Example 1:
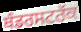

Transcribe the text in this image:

ਥੰਡਰਸਟਰੱਕ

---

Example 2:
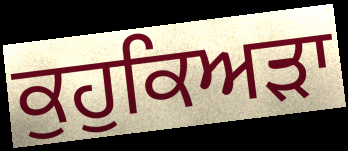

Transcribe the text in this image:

ਕੁਹੁਕਿਅੜਾ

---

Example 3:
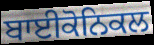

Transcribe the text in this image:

ਬਾਈਕੋਨਿਕਲ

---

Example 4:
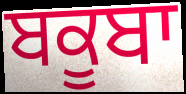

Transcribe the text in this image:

ਬਕੂਬਾ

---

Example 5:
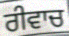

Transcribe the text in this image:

ਰੀਵਾਚ